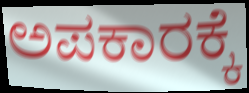
ಅಪಕಾರಕ್ಕೆ